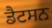
ਡੈਟਸਨ